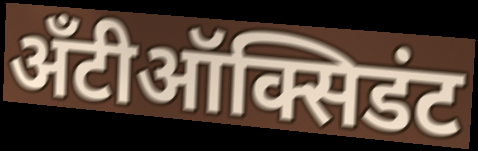
अँटीऑक्सिडंट